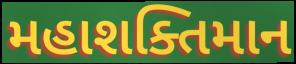
મહાશક્તિમાન